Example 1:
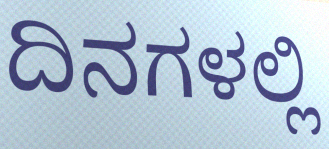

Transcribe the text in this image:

ದಿನಗಳಲ್ಲಿ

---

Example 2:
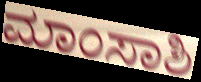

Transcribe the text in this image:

ಮಾಂಸಾಶಿ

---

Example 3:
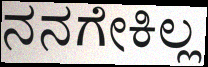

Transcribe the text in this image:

ನನಗೇಕಿಲ್ಲ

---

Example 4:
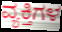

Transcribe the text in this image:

ವ್ಯಕ್ತಿಗಳ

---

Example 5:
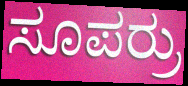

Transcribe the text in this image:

ಸೂಪರ್ರು